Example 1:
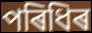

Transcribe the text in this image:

পৰিধিৰ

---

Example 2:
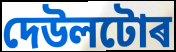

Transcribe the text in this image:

দেউলটোৰ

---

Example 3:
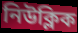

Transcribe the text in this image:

নিউক্লিক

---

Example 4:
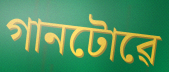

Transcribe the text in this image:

গানটোৱে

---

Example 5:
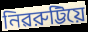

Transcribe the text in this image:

নিৱৰুট্টিয়ে